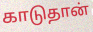
காடுதான்